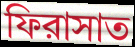
ফিরাসাত